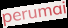
perumai